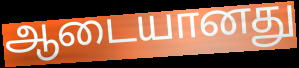
ஆடையானது